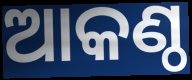
ଆକଣ୍ଠ